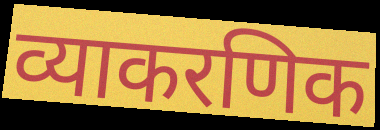
व्याकरणिक